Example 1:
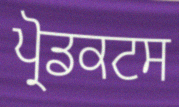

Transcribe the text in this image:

ਪ੍ਰੋਡਕਟਸ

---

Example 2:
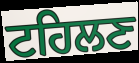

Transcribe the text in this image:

ਟਹਿਲਣ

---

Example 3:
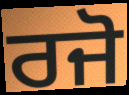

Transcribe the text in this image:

ਰਜੋ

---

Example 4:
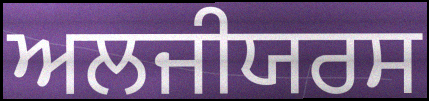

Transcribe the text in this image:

ਅਲਜੀਯਰਸ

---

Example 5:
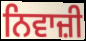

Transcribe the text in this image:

ਨਿਵਾਜ਼ੀ